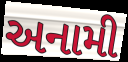
અનામી